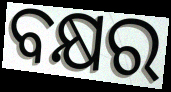
ବକ୍ଷର